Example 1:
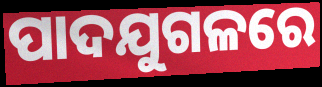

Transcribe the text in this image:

ପାଦଯୁଗଳରେ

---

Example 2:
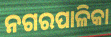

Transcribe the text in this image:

ନଗରପାଳିକା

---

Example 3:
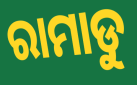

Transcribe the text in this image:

ରାମାଡୁ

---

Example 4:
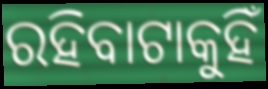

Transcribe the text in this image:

ରହିବାଟାକୁହିଁ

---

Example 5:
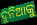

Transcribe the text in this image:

ଦୁନିଆକୁ